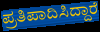
ಪ್ರತಿಪಾದಿಸಿದ್ದಾರೆ